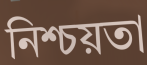
নিশ্চয়তা